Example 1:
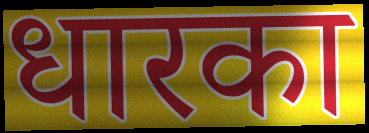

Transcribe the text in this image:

धारका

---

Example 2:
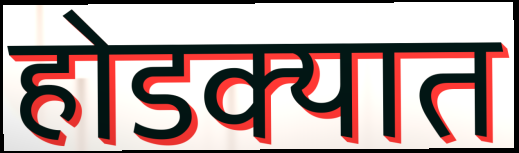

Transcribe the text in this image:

होडक्यात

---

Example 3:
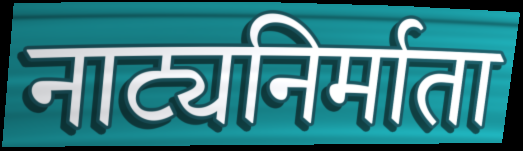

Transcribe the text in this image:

नाट्यनिर्माता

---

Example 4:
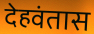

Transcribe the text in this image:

देहवंतास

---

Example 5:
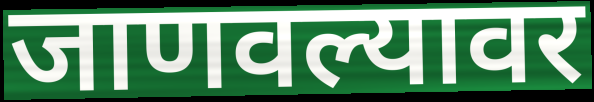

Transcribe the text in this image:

जाणवल्यावर